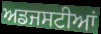
ਅਡਜਸਟੀਆਂ